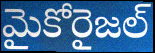
మైకోరైజల్